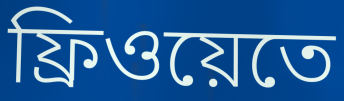
ফ্রিওয়েতে